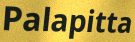
Palapitta